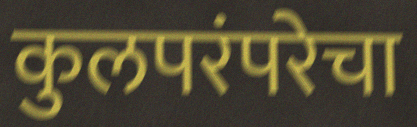
कुलपरंपरेचा